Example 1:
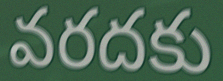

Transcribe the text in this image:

వరదకు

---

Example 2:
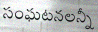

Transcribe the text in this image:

సంఘటనలన్నీ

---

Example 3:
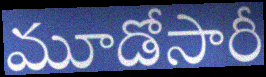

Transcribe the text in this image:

మూడోసారీ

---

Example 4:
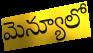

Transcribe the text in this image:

మెన్యూలో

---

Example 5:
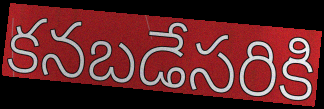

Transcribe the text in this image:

కనబడేసరికి